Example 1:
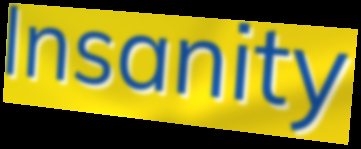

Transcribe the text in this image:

Insanity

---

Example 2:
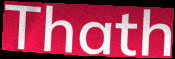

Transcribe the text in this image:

Thath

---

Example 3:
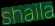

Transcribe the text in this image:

shaila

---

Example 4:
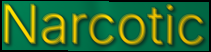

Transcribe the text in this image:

Narcotic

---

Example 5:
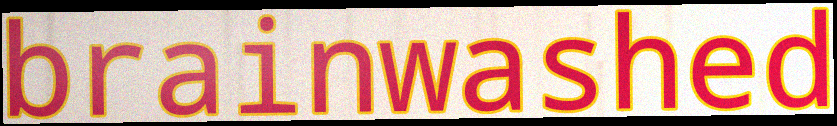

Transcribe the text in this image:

brainwashed